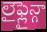
లైఫ్లైన్గా